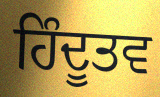
ਹਿੰਦੂਤਵ